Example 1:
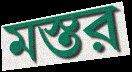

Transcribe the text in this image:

মস্তর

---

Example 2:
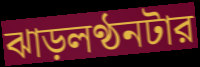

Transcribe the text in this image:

ঝাড়লণ্ঠনটার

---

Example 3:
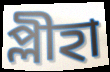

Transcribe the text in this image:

প্লীহা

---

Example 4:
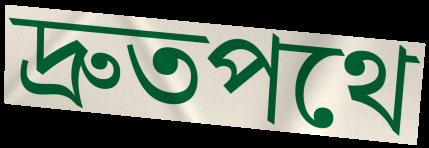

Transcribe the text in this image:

দ্রুতপথে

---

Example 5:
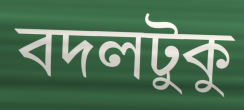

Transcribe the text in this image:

বদলটুকু